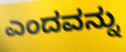
ಎಂದವನ್ನು